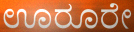
ಊರೂರೇ